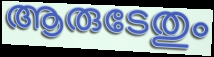
ആരുടേതും